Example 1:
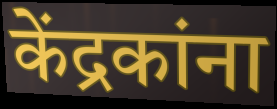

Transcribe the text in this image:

केंद्रकांना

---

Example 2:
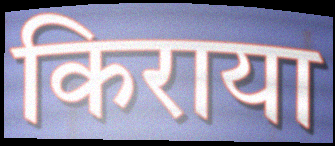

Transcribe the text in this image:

किराया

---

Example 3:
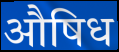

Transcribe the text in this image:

औषिध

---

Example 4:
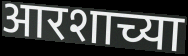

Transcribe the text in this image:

आरशाच्या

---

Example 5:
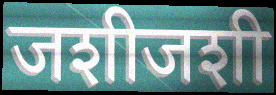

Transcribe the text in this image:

जशीजशी